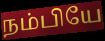
நம்பியே